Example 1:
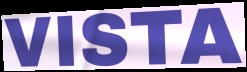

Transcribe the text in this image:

VISTA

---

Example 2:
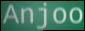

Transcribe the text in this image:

Anjoo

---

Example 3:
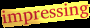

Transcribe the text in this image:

impressing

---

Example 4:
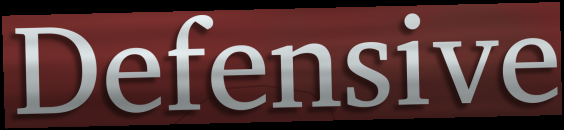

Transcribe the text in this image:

Defensive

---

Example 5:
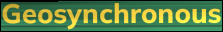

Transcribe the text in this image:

Geosynchronous